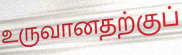
உருவானதற்குப்